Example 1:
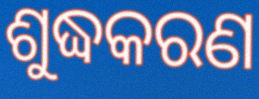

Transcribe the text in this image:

ଶୁଦ୍ଧକରଣ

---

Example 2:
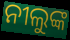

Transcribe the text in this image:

ନୀଲୁଙ୍କ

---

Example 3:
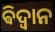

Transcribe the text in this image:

ଵିଦ୍ଵାନ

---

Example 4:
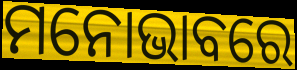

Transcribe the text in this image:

ମନୋଭାବରେ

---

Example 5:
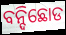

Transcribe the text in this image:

ବନ୍ଦିଛୋଡ